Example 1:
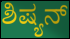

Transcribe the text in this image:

ಶಿಷ್ಯನ್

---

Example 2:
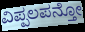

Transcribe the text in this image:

ವಿಪ್ಪಲಪನ್ತೋ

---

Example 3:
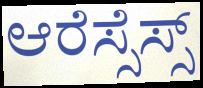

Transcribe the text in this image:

ಆರೆಸ್ಸೆಸ್ಸ್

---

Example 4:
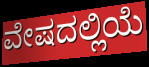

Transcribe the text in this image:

ವೇಷದಲ್ಲಿಯೆ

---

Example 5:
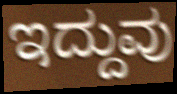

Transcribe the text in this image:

ಇದ್ದುವು